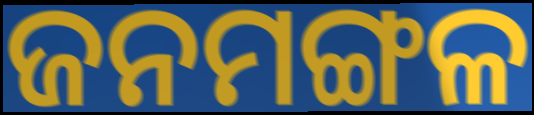
ଜନମଙ୍ଗଳ